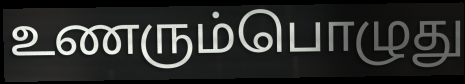
உணரும்பொழுது